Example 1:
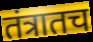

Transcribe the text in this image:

तंत्रातच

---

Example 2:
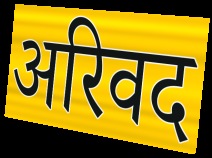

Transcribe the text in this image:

अरिवद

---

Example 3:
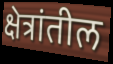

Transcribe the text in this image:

क्षेत्रांतील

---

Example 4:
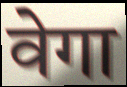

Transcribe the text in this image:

वेगा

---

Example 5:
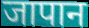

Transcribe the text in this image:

जापान